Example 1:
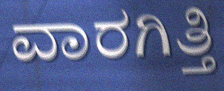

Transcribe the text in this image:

ವಾರಗಿತ್ತಿ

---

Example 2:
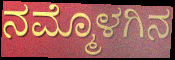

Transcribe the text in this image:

ನಮ್ಮೊಳಗಿನ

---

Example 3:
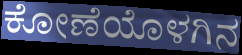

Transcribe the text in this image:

ಕೋಣೆಯೊಳಗಿನ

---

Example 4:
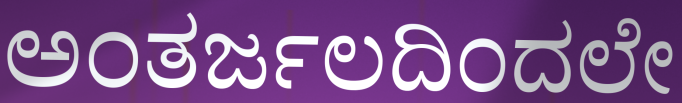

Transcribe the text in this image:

ಅಂತರ್ಜಲದಿಂದಲೇ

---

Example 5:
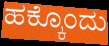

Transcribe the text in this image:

ಹಕ್ಕೊಂದು